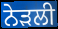
ਨੇੜਲੀ